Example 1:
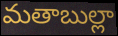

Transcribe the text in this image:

మతాబుల్లా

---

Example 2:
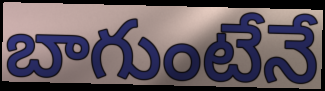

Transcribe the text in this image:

బాగుంటేనే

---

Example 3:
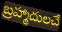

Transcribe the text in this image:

బ్రహ్మాదులచే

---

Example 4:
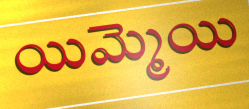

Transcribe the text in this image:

యిమ్మెయి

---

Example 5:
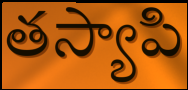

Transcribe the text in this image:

తస్యాపి